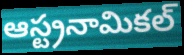
ఆస్ట్రనామికల్